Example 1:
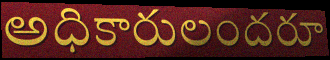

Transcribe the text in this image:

అధికారులందరూ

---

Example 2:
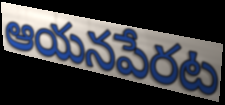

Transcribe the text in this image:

ఆయనపేరట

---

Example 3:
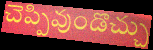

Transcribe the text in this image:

చెప్పివుండొచ్చు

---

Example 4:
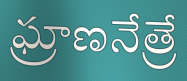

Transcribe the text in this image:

ఘ్రాణనేత్రే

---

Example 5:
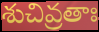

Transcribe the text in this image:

శుచివ్రతాః